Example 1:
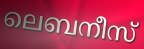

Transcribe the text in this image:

ലെബനീസ്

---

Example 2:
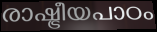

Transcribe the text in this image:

രാഷ്ട്രീയപാഠം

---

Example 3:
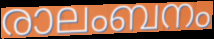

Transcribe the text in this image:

രാലംബനം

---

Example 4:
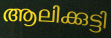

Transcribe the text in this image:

ആലിക്കുട്ടി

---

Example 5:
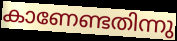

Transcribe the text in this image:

കാണേണ്ടതിന്നു